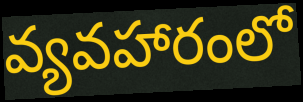
వ్యవహారంలో